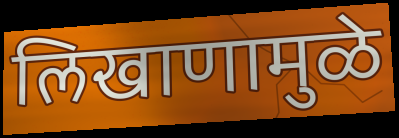
लिखाणामुळे